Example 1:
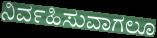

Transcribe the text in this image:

ನಿರ್ವಹಿಸುವಾಗಲೂ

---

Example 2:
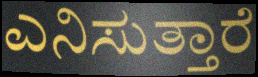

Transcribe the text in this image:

ಎನಿಸುತ್ತಾರೆ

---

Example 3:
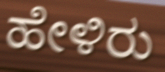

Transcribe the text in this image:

ಹೇಳಿರು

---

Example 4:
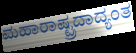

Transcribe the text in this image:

ಮಹಾರಾಷ್ಟ್ರದಾದ್ಯಂತ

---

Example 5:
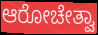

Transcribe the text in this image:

ಆರೋಚೇತ್ವಾ